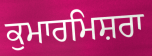
ਕੁਮਾਰਮਿਸ਼ਰਾ